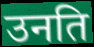
उनति